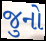
જુનો